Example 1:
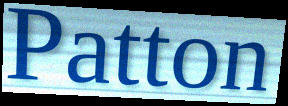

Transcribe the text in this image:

Patton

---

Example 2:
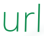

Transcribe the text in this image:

url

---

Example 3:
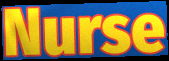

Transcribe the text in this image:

Nurse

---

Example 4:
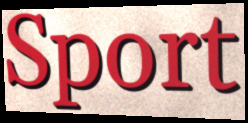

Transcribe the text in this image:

Sport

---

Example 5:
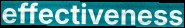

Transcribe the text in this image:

effectiveness